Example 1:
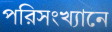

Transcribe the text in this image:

পরিসংখ্যানে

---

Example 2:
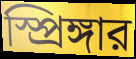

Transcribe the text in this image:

স্প্রিঙ্গার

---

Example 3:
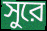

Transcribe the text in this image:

সুরে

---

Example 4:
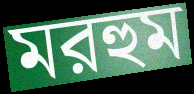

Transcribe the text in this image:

মরহুম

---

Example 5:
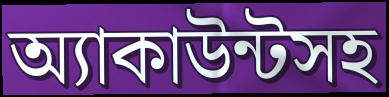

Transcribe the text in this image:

অ্যাকাউন্টসহ